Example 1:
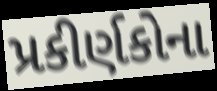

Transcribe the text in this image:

પ્રકીર્ણકોના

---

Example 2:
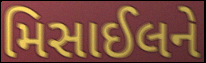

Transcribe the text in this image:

મિસાઈલને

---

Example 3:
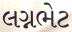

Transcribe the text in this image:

લગ્નભેટ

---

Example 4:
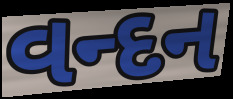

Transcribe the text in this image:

વન્દન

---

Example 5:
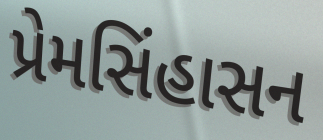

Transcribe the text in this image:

પ્રેમસિંહાસન